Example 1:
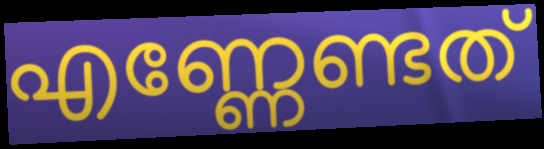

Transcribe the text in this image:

എണ്ണേണ്ടത്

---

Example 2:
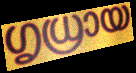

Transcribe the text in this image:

ഗൃധ്രായ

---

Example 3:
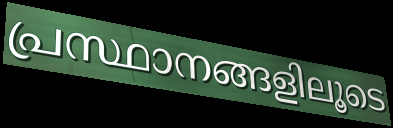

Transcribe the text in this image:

പ്രസ്ഥാനങ്ങളിലൂടെ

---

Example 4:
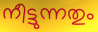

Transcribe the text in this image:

നീട്ടുന്നതും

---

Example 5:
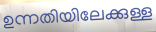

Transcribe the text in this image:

ഉന്നതിയിലേക്കുള്ള